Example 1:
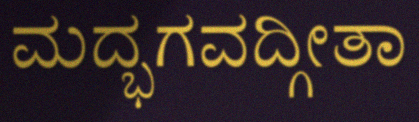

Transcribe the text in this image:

ಮದ್ಭಗವದ್ಗೀತಾ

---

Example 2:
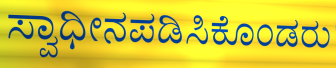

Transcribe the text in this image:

ಸ್ವಾಧೀನಪಡಿಸಿಕೊಂಡರು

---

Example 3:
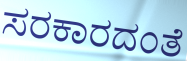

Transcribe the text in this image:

ಸರಕಾರದಂತೆ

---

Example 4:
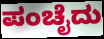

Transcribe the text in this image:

ಪಂಚೈದು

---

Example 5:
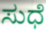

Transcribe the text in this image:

ಸುಧೆ